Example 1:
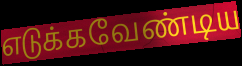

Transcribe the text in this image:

எடுக்கவேண்டிய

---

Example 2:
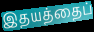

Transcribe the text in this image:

இதயத்தைப்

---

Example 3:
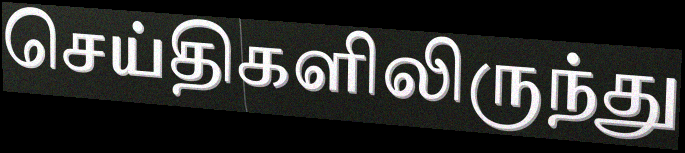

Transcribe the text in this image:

செய்திகளிலிருந்து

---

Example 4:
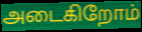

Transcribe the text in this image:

அடைகிறோம்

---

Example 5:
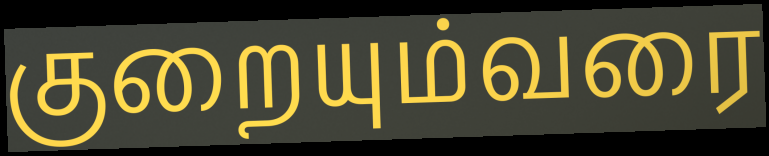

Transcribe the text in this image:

குறையும்வரை